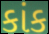
કાંક